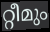
റ്റീമും